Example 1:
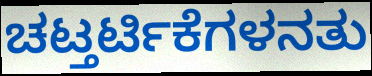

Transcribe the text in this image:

ಚಟ್ತರ್ಟಿಕೆಗಳನತು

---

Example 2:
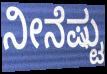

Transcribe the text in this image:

ನೀನೆಷ್ಟು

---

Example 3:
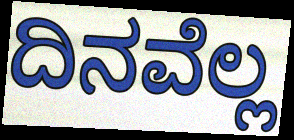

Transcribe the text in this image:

ದಿನವೆಲ್ಲ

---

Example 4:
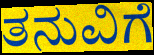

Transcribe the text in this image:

ತನುವಿಗೆ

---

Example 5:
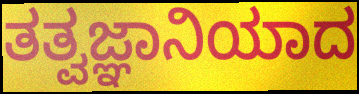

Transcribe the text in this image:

ತತ್ವಜ್ಞಾನಿಯಾದ